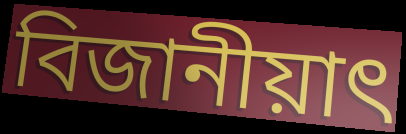
বিজানীয়াৎ